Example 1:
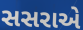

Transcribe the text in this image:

સસરાએ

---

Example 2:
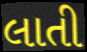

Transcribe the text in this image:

લાતી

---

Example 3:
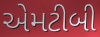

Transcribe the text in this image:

એમટીબી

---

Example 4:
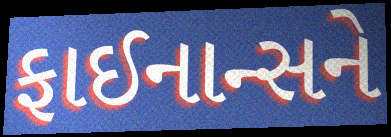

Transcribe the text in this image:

ફાઈનાન્સને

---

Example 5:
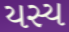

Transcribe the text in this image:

યસ્ય